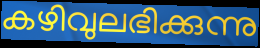
കഴിവുലഭിക്കുന്നു